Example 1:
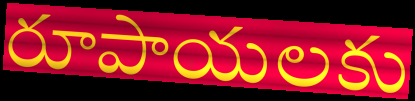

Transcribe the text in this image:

రూపాయలకు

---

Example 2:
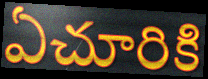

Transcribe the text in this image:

ఏచూరికి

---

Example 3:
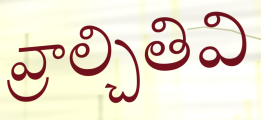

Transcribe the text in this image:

వ్రాల్చితివి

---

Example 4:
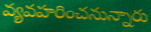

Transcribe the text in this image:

వ్యవహరించనున్నారు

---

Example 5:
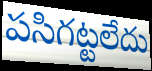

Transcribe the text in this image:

పసిగట్టలేదు